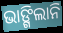
ଭାଙ୍ଗିଲାନି